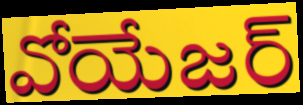
వోయేజర్